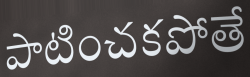
పాటించకపోతే